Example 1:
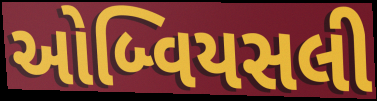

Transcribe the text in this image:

ઓબ્વિયસલી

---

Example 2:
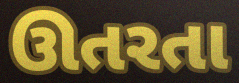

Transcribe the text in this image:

ઊતરતા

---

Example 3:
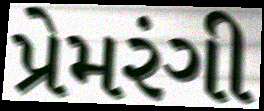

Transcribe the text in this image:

પ્રેમરંગી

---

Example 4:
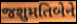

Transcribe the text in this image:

જશુમતિબેને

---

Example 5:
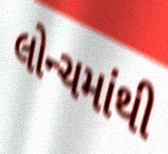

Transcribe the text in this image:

લોન્ચમાંથી